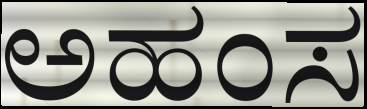
ಅಹಂಸ